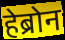
हेब्रोन